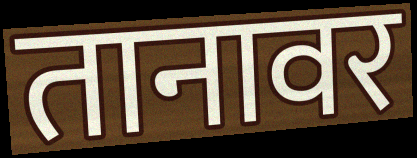
तानावर